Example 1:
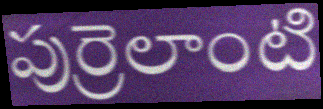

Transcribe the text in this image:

పుర్రెలాంటి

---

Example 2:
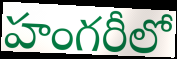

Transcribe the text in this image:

హంగరీలో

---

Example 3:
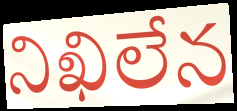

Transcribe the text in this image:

నిఖిలేన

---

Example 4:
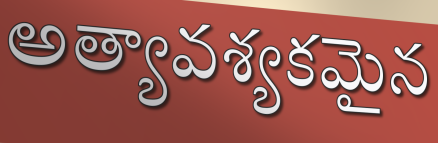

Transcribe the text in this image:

అత్యావశ్యకమైన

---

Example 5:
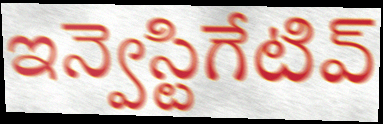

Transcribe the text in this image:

ఇన్వెస్టిగేటివ్